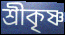
শ্ৰীকৃষ্ণ